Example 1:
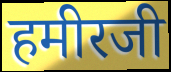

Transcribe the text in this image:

हमीरजी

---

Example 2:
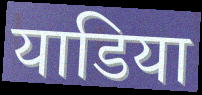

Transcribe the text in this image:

याडिया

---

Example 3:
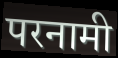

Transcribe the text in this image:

परनामी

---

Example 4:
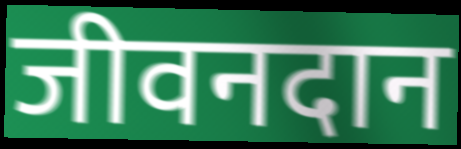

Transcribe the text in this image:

जीवनदान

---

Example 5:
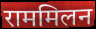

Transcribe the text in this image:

राममिलन